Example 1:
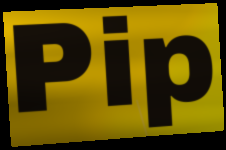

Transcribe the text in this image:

Pip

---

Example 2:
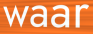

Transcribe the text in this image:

waar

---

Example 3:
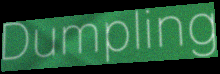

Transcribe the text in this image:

Dumpling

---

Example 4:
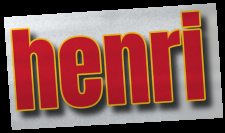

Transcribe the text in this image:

henri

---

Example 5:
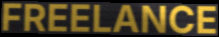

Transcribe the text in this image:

FREELANCE